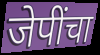
जेपींचा